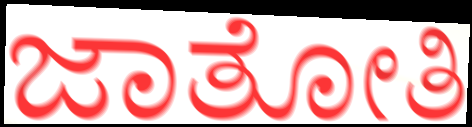
ಜಾತೋತಿ